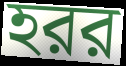
হরর